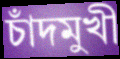
চাঁদমুখী